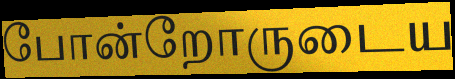
போன்றோருடைய